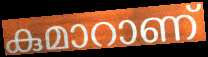
കുമാറാണ്